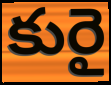
కురై